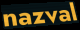
nazval